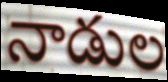
నాడుల